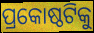
ପ୍ରକୋଷ୍ଠଟିକୁ